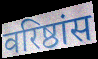
वरिष्ठांस